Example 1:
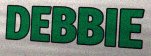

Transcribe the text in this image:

DEBBIE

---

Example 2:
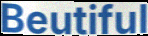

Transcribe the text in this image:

Beutiful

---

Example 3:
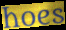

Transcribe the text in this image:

hoes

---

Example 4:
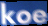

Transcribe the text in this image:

koe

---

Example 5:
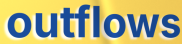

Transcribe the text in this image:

outflows